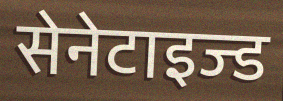
सेनेटाइज्ड